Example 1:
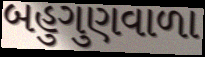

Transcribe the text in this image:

બહુગુણવાળા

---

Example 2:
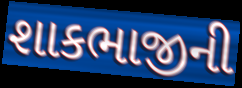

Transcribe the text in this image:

શાકભાજીની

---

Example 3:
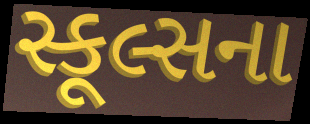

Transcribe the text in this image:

સ્કૂલ્સના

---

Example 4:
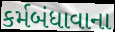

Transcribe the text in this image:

કર્મબંધાવાના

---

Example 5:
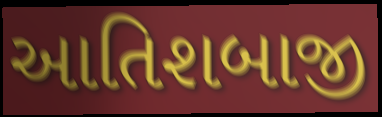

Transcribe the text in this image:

આતિશબાજી